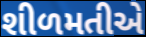
શીળમતીએ